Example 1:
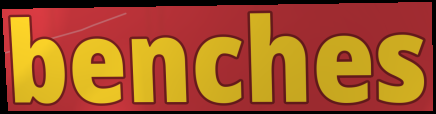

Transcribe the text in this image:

benches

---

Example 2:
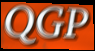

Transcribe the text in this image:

QGP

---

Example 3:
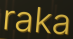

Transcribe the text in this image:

raka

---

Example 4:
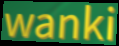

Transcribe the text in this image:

wanki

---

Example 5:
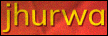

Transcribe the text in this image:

jhurwa